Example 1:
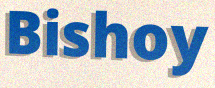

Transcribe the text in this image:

Bishoy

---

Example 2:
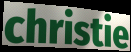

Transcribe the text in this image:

christie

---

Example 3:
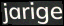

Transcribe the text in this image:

jarige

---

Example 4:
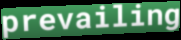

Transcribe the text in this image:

prevailing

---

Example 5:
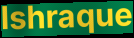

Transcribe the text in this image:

Ishraque